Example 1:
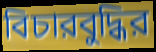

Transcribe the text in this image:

বিচারবুদ্ধির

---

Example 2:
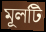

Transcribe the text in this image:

মূলটি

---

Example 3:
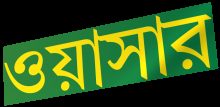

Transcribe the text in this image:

ওয়াসার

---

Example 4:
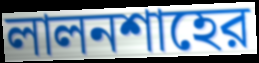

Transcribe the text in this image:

লালনশাহের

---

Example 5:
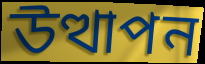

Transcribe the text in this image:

উত্থাপন